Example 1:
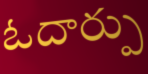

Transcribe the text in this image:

ఓదార్పు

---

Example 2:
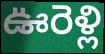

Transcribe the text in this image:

ఊరెళ్లి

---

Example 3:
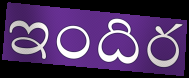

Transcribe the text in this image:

ఇందిర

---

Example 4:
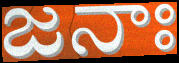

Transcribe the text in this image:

జనాః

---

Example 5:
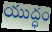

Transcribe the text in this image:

యుద్ధం